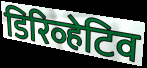
डिरिव्हेटिव